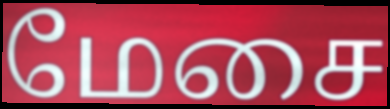
மேசை